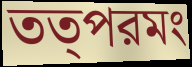
তত্পরমং